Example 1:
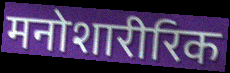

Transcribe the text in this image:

मनोशारीरिक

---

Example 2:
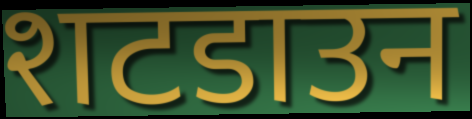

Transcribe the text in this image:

शटडाउन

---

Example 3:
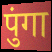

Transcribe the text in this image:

पुंगा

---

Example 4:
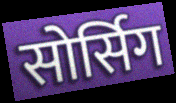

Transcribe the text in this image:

सोर्सिग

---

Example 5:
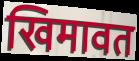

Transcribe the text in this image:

खिमावत